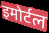
इमोर्टल